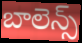
బాలెన్స్